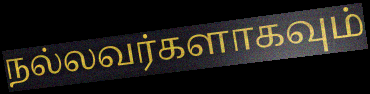
நல்லவர்களாகவும்